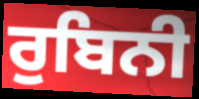
ਰੁਬਿਨੀ